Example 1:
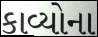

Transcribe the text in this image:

કાવ્યોના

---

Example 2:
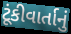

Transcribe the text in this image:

ટૂંકીવાર્તાનું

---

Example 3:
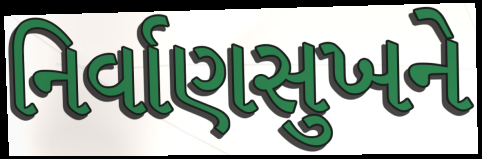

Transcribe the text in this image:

નિર્વાણસુખને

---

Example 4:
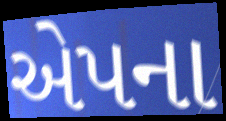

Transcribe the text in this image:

એપના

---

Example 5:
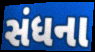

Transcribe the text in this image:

સંધના